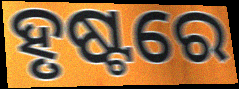
ହୃଷ୍ଟରେ